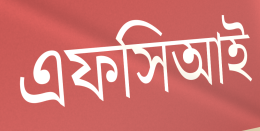
এফসিআই